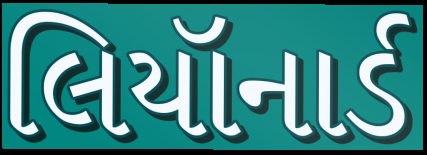
લિયૉનાર્ડ